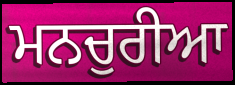
ਮਨਚੁਰੀਆ